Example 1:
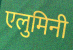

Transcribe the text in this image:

एलुमिनी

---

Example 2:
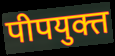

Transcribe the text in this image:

पीपयुक्त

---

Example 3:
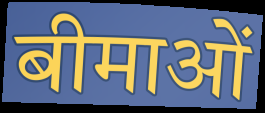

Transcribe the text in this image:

बीमाओं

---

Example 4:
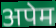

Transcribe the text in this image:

अपेम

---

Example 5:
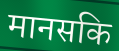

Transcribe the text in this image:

मानसकि